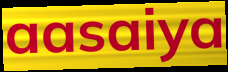
aasaiya